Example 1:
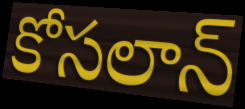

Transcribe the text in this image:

కోసలాన్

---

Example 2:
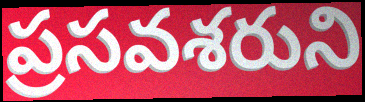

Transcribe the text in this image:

ప్రసవశరుని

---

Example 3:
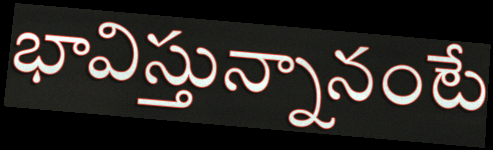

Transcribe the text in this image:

భావిస్తున్నానంటే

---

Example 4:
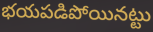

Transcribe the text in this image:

భయపడిపోయినట్టు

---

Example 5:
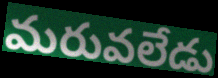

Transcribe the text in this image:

మరువలేడు